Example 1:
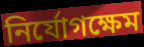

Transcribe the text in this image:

নির্যোগক্ষেম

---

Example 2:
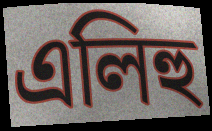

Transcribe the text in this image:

এলিহু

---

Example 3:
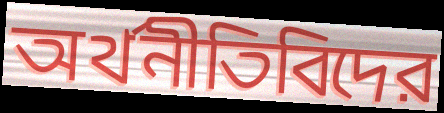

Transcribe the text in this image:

অর্থনীতিবিদের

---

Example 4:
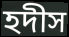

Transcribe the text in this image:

হদীস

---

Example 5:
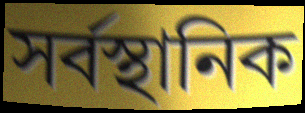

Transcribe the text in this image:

সর্বস্থানিক